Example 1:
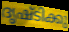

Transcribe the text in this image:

ദൃഷ്ടിക്കു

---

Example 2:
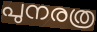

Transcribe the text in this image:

പുനരത്ര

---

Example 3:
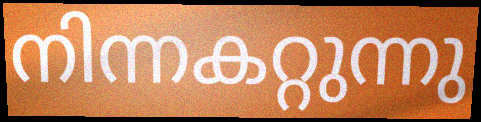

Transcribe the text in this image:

നിന്നകറ്റുന്നു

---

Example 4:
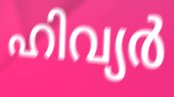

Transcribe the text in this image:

ഹിവ്യർ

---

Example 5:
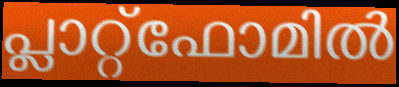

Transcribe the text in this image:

പ്ലാറ്റ്ഫോമിൽ